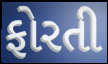
ફોરતી